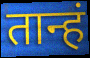
तान्हं